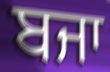
ਬਜਾ